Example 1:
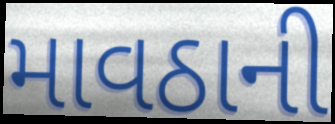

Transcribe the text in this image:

માવઠાની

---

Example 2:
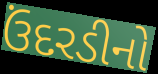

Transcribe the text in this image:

ઉંદરડીનો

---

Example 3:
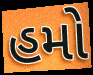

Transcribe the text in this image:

હમો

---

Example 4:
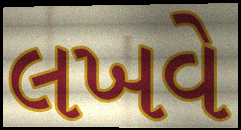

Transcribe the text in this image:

લખવે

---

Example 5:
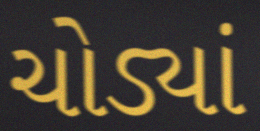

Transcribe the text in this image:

ચોડ્યાં